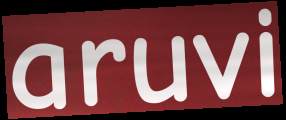
aruvi